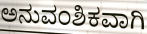
ಅನುವಂಶಿಕವಾಗಿ